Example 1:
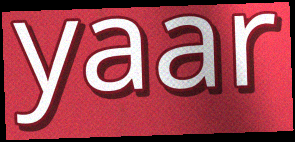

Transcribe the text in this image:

yaar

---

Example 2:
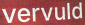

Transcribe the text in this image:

vervuld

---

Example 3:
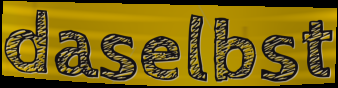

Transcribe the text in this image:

daselbst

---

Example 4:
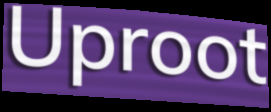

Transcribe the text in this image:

Uproot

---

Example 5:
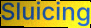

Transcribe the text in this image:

Sluicing